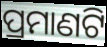
ପ୍ରମାଣଟି